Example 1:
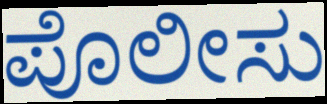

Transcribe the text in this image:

ಪೊಲೀಸು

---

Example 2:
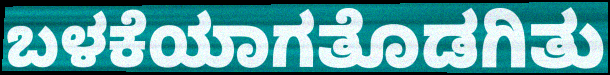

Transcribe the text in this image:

ಬಳಕೆಯಾಗತೊಡಗಿತು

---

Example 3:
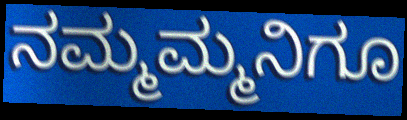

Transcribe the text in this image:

ನಮ್ಮಮ್ಮನಿಗೂ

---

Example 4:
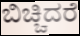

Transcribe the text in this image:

ಬಿಚ್ಚಿದರೆ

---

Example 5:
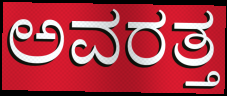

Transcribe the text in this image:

ಅವರತ್ತ